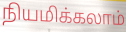
நியமிக்கலாம்